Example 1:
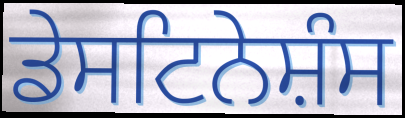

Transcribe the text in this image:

ਡੇਸਟਿਨੇਸ਼ੰਸ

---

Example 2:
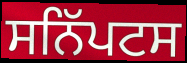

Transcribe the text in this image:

ਸਨਿੱਪਟਸ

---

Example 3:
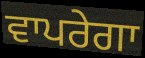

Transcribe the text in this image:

ਵਾਪਰੇਗਾ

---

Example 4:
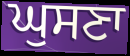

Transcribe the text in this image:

ਘੁਸਣਾ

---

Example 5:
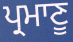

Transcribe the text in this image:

ਪ੍ਰਮਾਣੂ